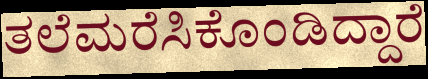
ತಲೆಮರೆಸಿಕೊಂಡಿದ್ದಾರೆ